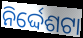
ନିର୍ଦ୍ଦେଶଟା